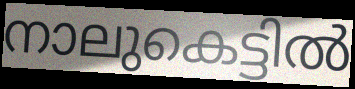
നാലുകെട്ടിൽ